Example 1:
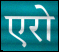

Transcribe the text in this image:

एरो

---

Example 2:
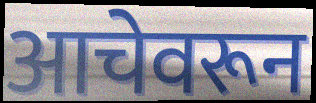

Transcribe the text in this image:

आचेवरून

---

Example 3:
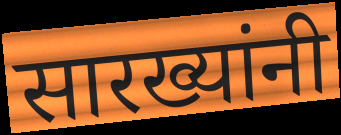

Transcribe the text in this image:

सारख्यांनी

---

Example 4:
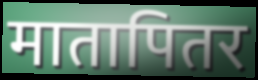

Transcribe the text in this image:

मातापितर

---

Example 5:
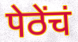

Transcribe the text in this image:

पेठेंचं